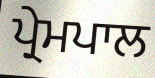
ਪ੍ਰੇਮਪਾਲ